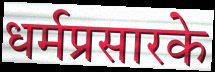
धर्मप्रसारके